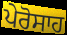
ਪੇਰੋਸਾਹ